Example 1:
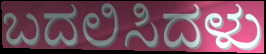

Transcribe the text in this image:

ಬದಲಿಸಿದಳು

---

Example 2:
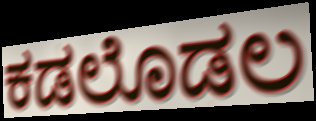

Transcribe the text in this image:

ಕಡಲೊಡಲ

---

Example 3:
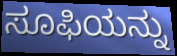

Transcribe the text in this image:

ಸೂಫಿಯನ್ನು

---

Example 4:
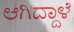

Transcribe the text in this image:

ಆಗಿದ್ದಾಳೆ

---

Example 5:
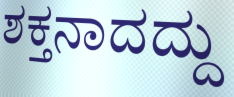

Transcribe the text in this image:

ಶಕ್ತನಾದದ್ದು